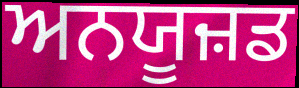
ਅਨਯੂਜ਼ਡ